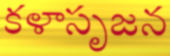
కళాసృజన